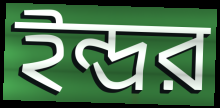
ইন্দ্রর